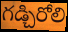
గడ్చిరోలి